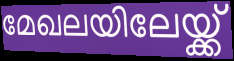
മേഖലയിലേയ്ക്ക്